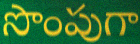
సొంపుగా